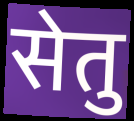
सेतु